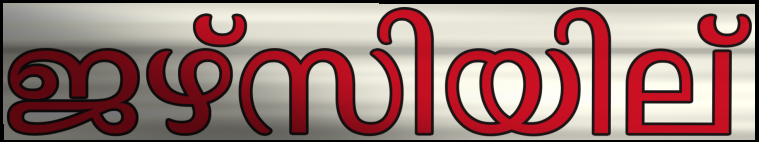
ജഴ്സിയില്